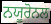
ਨਯੂਰੋਨਲ